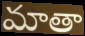
మాతా